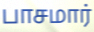
பாசமார்